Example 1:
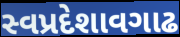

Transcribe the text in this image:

સ્વપ્રદેશાવગાઢ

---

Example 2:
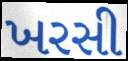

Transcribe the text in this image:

ખરસી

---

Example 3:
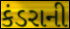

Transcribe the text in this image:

કંડરાની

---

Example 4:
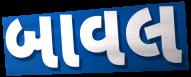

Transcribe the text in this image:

બાવલ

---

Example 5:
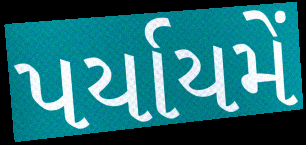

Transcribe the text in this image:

પર્યાયમેં